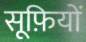
सूफ़ियों